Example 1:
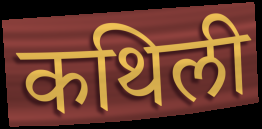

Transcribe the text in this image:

कथिली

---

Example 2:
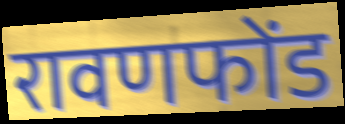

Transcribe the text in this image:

रावणफोंड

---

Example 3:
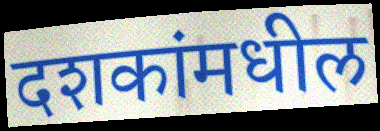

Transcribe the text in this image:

दशकांमधील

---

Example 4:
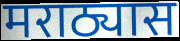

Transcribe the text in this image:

मराठ्यास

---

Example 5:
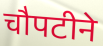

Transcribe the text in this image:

चौपटीने